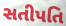
સતીપતિ